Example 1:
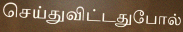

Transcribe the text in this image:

செய்துவிட்டதுபோல்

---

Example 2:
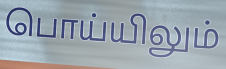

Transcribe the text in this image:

பொய்யிலும்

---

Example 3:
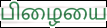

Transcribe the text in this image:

பிழையை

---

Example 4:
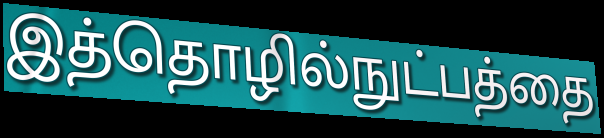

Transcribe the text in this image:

இத்தொழில்நுட்பத்தை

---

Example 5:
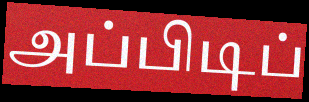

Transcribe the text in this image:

அப்பிடிப்